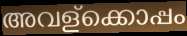
അവള്ക്കൊപ്പം